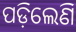
ପଡ଼ିଲେଣି